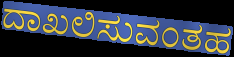
ದಾಖಲಿಸುವಂತಹ